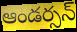
ఆండర్సన్